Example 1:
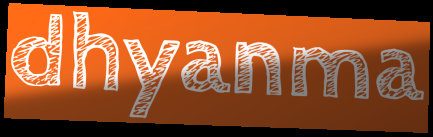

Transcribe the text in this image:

dhyanma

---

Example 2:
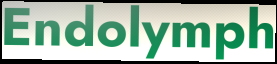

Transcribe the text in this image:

Endolymph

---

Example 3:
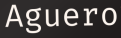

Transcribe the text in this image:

Aguero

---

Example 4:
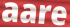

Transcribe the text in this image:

aare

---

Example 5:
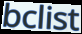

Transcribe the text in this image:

bclist